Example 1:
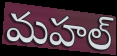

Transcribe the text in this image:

మహల్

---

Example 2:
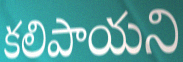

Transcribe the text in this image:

కలిపాయని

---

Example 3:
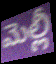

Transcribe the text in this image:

మెల్లీ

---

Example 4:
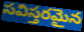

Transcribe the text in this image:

సవిస్తరమైన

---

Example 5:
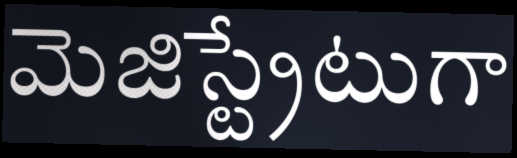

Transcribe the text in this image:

మెజిస్ట్రేటుగా